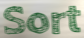
Sort